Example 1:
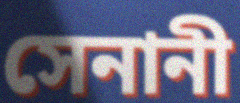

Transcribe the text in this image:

সেনানী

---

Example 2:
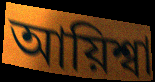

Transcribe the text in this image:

আয়িশ্বা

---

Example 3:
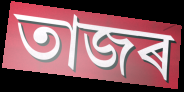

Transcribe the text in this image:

তাজৰ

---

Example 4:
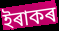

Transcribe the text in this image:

ইৰাকৰ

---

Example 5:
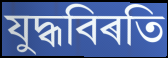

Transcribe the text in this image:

যুদ্ধবিৰতি